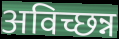
अविच्छन्न